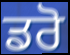
ਡਰੋ